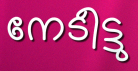
നേടീട്ടു